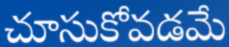
చూసుకోవడమే